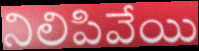
నిలిపివేయి